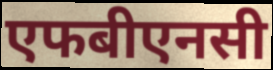
एफबीएनसी